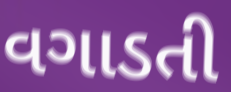
વગાડતી